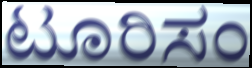
ಟೂರಿಸಂ